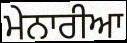
ਮੇਨਾਰੀਆ